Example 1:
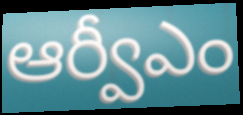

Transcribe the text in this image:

ఆర్వీఎం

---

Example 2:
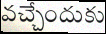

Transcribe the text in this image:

వచ్చేందుకు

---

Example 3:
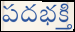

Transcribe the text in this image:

పదభక్తి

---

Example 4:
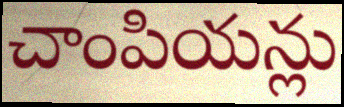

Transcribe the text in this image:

చాంపియన్లు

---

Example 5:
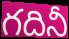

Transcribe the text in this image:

గదినీ